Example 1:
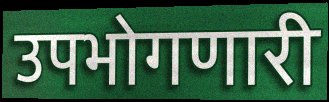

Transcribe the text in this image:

उपभोगणारी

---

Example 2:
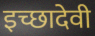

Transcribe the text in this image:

इच्छादेवी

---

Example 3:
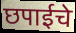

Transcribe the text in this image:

छपाईचे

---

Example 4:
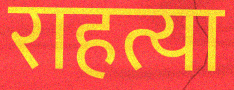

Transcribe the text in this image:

राहत्या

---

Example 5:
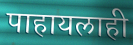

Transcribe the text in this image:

पाहायलाही